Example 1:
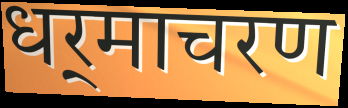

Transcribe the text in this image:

धर्माचरण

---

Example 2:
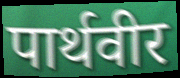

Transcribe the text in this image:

पार्थवीर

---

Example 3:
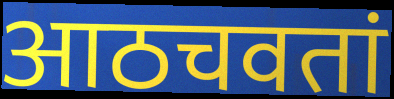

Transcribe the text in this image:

आठचवतां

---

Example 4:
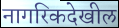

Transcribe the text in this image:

नागरिकदेखील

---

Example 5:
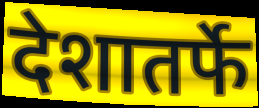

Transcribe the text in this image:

देशातर्फे